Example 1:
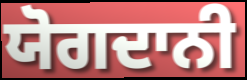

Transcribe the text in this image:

ਯੋਗਦਾਨੀ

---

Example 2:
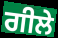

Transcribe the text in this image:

ਗੀਲੇ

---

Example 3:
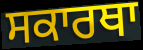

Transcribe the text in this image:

ਸਕਾਰਥਾ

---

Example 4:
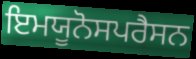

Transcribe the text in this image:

ਇਮਯੂਨੋਸਪਰੈਸਨ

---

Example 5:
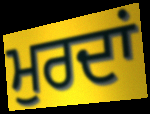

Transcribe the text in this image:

ਮੁਰਦਾਂ